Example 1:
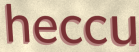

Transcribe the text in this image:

heccu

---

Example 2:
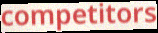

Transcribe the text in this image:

competitors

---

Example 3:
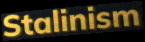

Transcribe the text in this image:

Stalinism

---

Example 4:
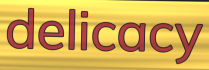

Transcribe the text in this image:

delicacy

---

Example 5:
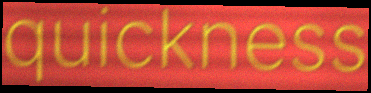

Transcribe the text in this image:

quickness